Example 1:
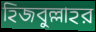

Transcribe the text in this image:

হিজবুল্লাহর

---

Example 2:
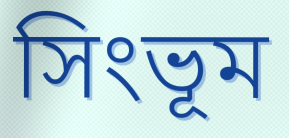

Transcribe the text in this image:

সিংভূম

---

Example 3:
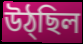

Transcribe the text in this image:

উঠ্ছিল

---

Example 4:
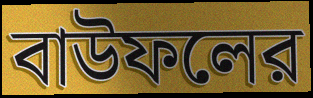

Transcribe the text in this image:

বাউফলের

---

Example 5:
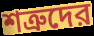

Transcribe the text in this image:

শত্রুদের